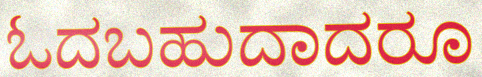
ಓದಬಹುದಾದರೂ